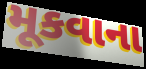
મૂકવાના